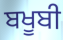
ਬਖੂਬੀ